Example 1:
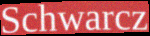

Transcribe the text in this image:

Schwarcz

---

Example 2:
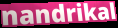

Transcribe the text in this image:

nandrikal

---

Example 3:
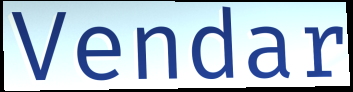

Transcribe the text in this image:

Vendar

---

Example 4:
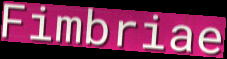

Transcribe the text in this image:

Fimbriae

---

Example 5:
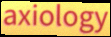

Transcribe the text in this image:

axiology